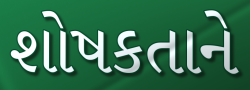
શોષકતાને